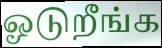
ஓடுறீங்க